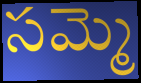
సమ్మె